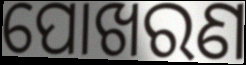
ପୋଖରଣ